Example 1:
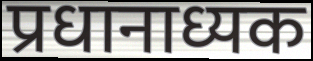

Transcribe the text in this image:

प्रधानाध्यक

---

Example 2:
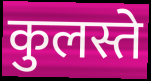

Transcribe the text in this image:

कुलस्ते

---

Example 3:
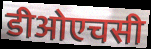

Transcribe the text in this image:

डीओएचसी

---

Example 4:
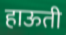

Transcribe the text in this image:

हाऊती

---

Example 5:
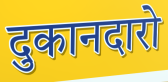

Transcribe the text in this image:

दुकानदारो